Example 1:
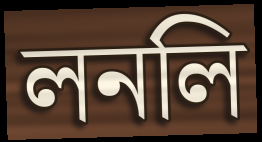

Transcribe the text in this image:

লনলি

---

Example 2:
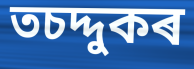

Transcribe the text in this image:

তচদ্দুকৰ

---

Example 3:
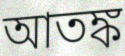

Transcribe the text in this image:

আতঙ্ক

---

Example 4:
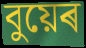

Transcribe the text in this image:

বুয়েৰ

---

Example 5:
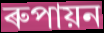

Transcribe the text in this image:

ৰুপায়ন